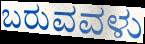
ಬರುವವಳು